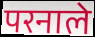
परनाले